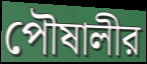
পৌষালীর